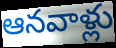
ఆనవాళ్లు